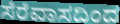
ಸೆರೆವಾಸದಿಂದ